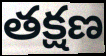
తక్షణ